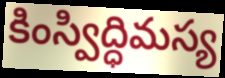
కింస్విద్ధిమస్య